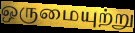
ஒருமையுற்று